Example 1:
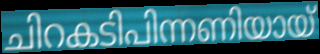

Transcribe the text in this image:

ചിറകടിപിന്നണിയായ്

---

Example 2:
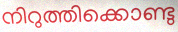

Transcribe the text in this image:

നിറുത്തിക്കൊണ്ടു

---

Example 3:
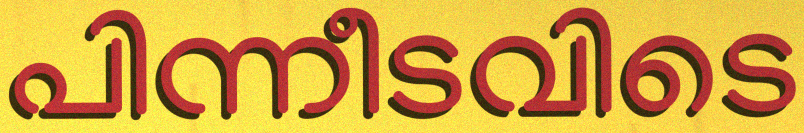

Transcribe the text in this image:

പിന്നീടവിടെ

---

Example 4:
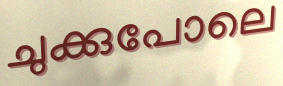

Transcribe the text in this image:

ചുക്കുപോലെ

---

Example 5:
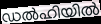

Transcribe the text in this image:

ഡൽഹിയിൽ